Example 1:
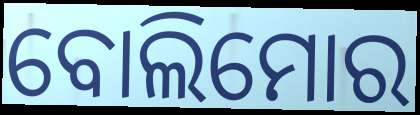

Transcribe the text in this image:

ବୋଲିମୋର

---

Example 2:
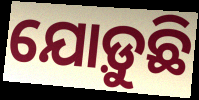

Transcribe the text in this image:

ଯୋଡ଼ୁଛି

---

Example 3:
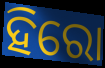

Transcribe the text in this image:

ହିରୋ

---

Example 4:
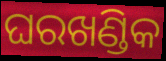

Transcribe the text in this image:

ଘରଖଣ୍ଡିକ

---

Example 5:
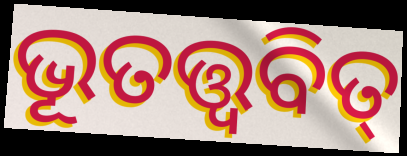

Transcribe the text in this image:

ଭୂତତ୍ତ୍ୱବିତ୍